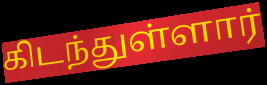
கிடந்துள்ளார்